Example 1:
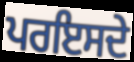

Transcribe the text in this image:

ਪਰਇਸਦੇ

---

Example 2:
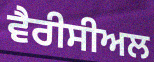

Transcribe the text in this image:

ਵੈਰੀਸੀਅਲ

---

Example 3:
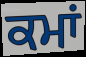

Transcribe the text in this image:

ਕਮਾਂ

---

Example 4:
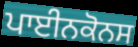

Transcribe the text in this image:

ਪਾਈਨਕੋਨਸ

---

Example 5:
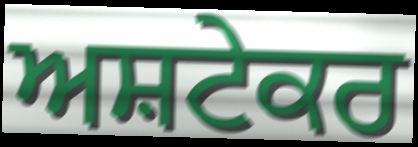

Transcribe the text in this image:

ਅਸ਼ਟੇਕਰ